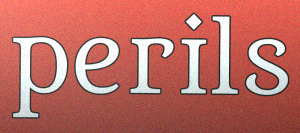
perils